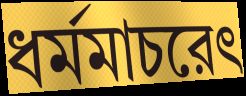
ধর্মমাচরেৎ